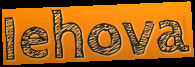
Iehova